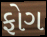
ફોગ